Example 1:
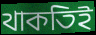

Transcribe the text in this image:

থাকতিই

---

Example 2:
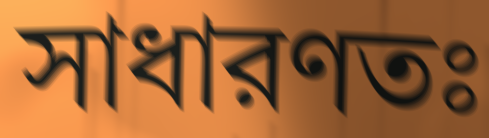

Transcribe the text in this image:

সাধারণতঃ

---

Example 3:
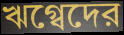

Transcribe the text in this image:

ঋগ্বেদের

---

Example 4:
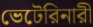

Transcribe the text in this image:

ভেটেরিনারী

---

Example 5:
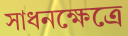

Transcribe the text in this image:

সাধনক্ষেত্রে